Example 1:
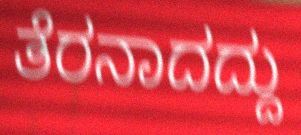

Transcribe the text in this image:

ತೆರನಾದದ್ದು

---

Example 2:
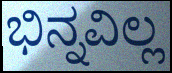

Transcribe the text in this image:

ಭಿನ್ನವಿಲ್ಲ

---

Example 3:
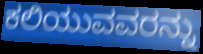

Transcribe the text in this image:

ಕಲಿಯುವವರನ್ನು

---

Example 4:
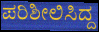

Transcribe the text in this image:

ಪರಿಶೀಲಿಸಿದ್ದ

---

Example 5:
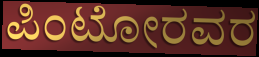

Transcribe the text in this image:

ಪಿಂಟೋರವರ